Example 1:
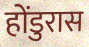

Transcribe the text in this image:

होंडुरास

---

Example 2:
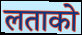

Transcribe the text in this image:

लताको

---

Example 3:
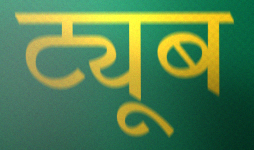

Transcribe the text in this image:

ट्यूब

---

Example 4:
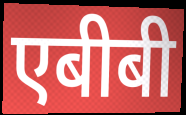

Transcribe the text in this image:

एबीबी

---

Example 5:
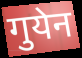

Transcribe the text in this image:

गुयेन